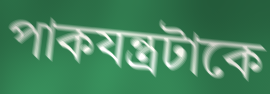
পাকযন্ত্রটাকে